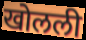
खोलली